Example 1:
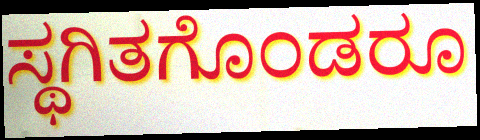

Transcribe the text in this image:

ಸ್ಥಗಿತಗೊಂಡರೂ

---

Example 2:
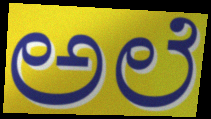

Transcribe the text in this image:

ಅಲೆ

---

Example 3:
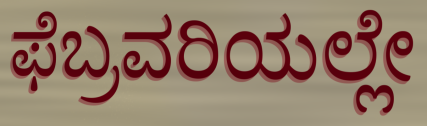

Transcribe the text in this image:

ಫೆಬ್ರವರಿಯಲ್ಲೇ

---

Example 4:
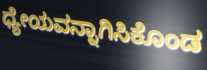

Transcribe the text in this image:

ಧ್ಯೇಯವನ್ನಾಗಿಸಿಕೊಂಡ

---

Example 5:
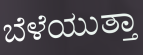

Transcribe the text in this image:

ಬೆಳೆಯುತ್ತಾ